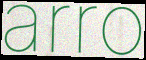
arro